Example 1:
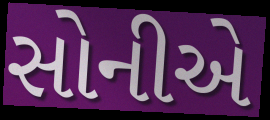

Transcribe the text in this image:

સોનીએ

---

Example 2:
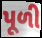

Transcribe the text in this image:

પૂળી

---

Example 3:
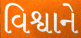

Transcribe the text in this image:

વિશ્વાને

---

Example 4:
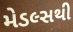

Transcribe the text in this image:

મેડલ્સથી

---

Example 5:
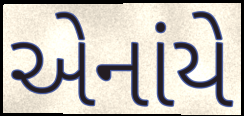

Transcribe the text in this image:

એનાંયે